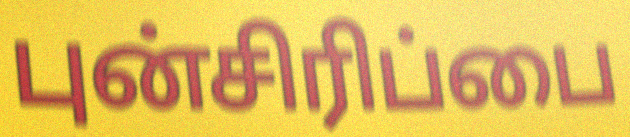
புன்சிரிப்பை